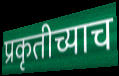
प्रकृतीच्याच